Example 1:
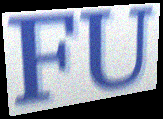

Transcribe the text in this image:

FU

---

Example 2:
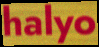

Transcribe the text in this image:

halyo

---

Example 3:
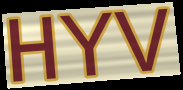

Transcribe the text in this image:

HYV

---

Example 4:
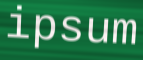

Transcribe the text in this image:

ipsum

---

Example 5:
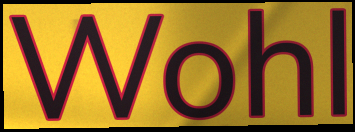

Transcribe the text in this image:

Wohl